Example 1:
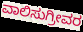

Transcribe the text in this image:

ವಾಲಿಸುಗ್ರೀವರ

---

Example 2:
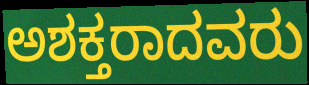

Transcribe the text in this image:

ಅಶಕ್ತರಾದವರು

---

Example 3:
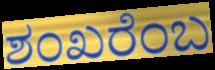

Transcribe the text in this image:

ಶಂಖರೆಂಬ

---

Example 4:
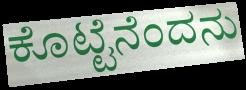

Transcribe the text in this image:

ಕೊಟ್ಟೆನೆಂದನು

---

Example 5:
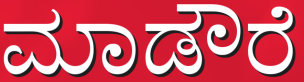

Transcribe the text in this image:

ಮಾಡೌರೆ